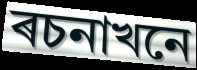
ৰচনাখনে